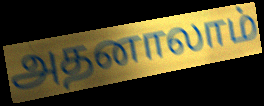
அதனாலாம்